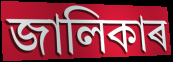
জালিকাৰ